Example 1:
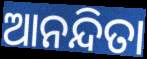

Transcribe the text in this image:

ଆନନ୍ଦିତା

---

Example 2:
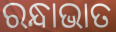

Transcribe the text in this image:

ରନ୍ଧାଭାତ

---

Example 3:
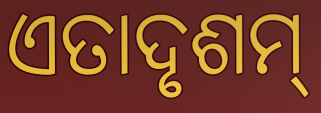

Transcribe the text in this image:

ଏତାଦୃଶମ୍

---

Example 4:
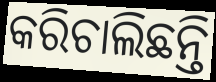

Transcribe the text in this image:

କରିଚାଲିଛନ୍ତି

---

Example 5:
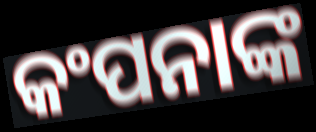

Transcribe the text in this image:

କଂପନାଙ୍କ